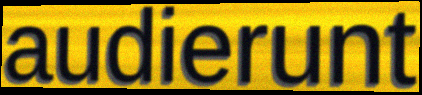
audierunt